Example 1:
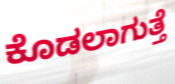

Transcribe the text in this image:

ಕೊಡಲಾಗುತ್ತೆ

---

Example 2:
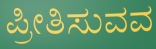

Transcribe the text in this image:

ಪ್ರೀತಿಸುವವ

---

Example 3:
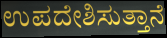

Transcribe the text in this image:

ಉಪದೇಶಿಸುತ್ತಾನೆ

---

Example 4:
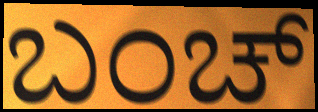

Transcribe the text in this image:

ಬಂಚ್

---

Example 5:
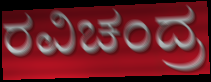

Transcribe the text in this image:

ರವಿಚಂದ್ರ